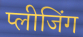
प्लीजिंग